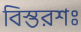
বিস্তরশঃ